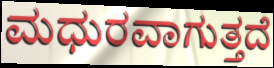
ಮಧುರವಾಗುತ್ತದೆ